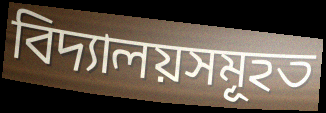
বিদ্যালয়সমূহত